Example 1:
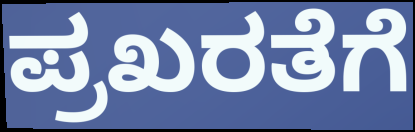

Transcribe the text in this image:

ಪ್ರಖರತೆಗೆ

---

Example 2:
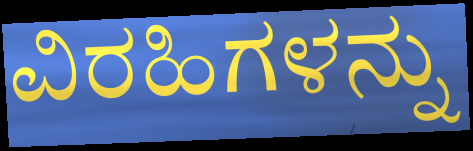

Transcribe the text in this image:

ವಿರಹಿಗಳನ್ನು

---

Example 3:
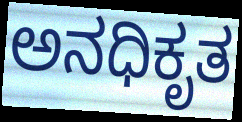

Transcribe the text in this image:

ಅನಧಿಕೃತ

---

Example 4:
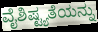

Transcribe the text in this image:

ವೈಶಿಷ್ಟ್ಯತೆಯನ್ನು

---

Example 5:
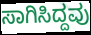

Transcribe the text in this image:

ಸಾಗಿಸಿದ್ದವು